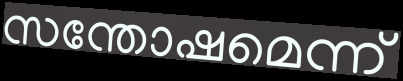
സന്തോഷമെന്ന്